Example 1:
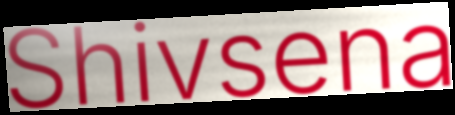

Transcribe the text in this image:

Shivsena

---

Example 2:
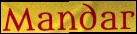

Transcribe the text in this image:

Mandar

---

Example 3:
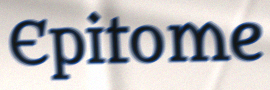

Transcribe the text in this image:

Epitome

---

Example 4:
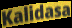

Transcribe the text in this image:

Kalidasa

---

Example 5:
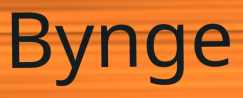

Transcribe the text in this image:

Bynge